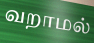
வறாமல்